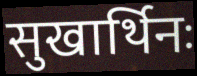
सुखार्थिनः